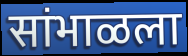
सांभाळला